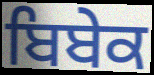
ਬਿਬੇਕ